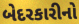
બેદરકારીનો